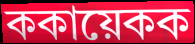
ককায়েকক